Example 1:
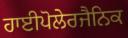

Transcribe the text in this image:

ਹਾਈਪੋਲੇਰਜੈਨਿਕ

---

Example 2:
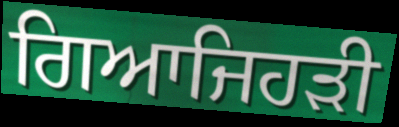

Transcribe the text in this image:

ਗਿਆਜਿਹੜੀ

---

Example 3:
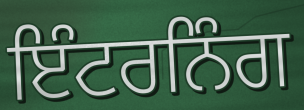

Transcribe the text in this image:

ਇੰਟਰਨਿੰਗ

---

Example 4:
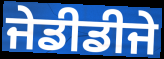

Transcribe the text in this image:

ਜੇਡੀਡੀਜੇ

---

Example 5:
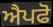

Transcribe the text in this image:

ਐਪਫੋ